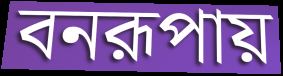
বনরূপায়